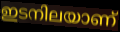
ഇടനിലയാണ്